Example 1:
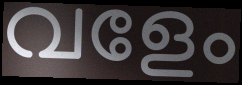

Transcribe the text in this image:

വളേം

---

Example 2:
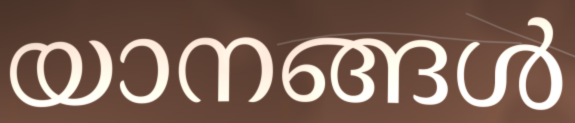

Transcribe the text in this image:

യാനങ്ങൾ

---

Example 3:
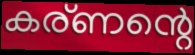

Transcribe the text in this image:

കര്ണന്റെ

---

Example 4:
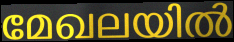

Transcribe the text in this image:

മേഖലയിൽ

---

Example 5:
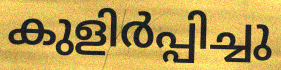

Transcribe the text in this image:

കുളിർപ്പിച്ചു